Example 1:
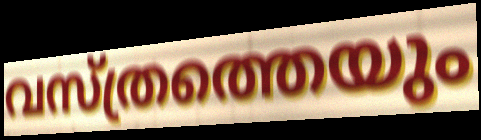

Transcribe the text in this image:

വസ്ത്രത്തെയും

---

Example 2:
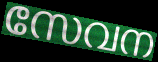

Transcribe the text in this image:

സേവന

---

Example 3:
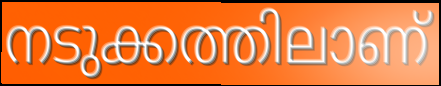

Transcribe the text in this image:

നടുക്കത്തിലാണ്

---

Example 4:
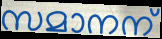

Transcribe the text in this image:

സമാനന്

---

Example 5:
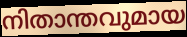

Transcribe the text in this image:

നിതാന്തവുമായ